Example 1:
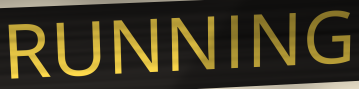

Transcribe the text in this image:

RUNNING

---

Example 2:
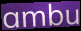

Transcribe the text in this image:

ambu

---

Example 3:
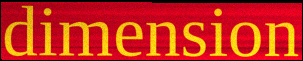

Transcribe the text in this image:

dimension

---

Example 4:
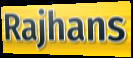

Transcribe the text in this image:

Rajhans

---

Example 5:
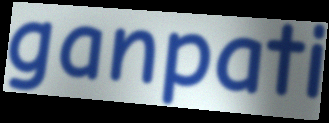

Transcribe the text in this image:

ganpati